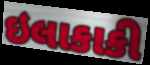
ઇલાકાકી